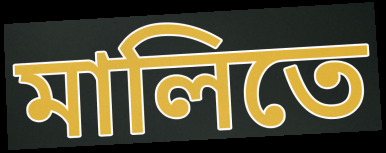
মালিতে